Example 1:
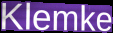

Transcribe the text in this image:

Klemke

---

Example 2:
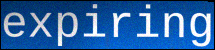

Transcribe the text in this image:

expiring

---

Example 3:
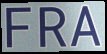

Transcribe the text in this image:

FRA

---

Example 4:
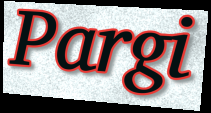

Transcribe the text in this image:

Pargi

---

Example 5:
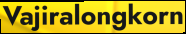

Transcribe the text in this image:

Vajiralongkorn